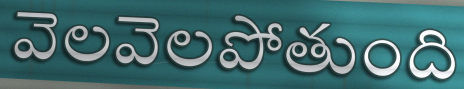
వెలవెలపోతుంది